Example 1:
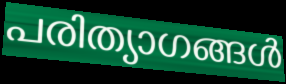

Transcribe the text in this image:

പരിത്യാഗങ്ങൾ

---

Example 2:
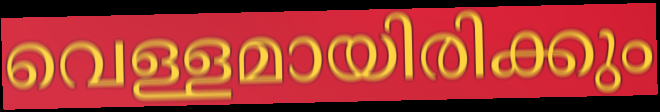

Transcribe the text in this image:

വെള്ളമായിരിക്കും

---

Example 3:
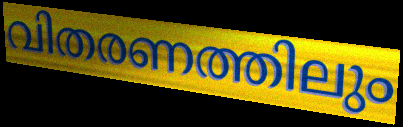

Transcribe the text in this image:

വിതരണത്തിലും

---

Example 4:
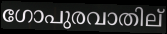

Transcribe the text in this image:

ഗോപുരവാതില്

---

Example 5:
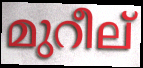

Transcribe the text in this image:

മുറീല്